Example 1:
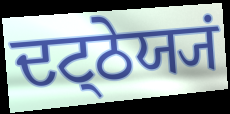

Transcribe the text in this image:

ਦਟ੍ਠੇਯ੍ਯਂ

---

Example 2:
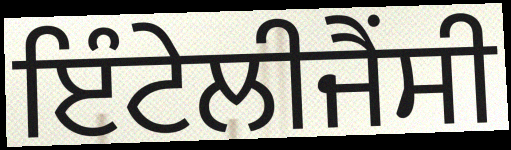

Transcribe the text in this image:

ਇੰਟੇਲੀਜੈਂਸੀ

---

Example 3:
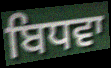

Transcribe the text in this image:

ਬਿਧਵਾ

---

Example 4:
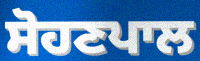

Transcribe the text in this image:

ਸੋਹਣਪਾਲ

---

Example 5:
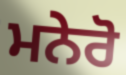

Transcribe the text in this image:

ਮਨੇਰੋ